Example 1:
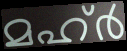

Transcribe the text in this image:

മഹ്ർ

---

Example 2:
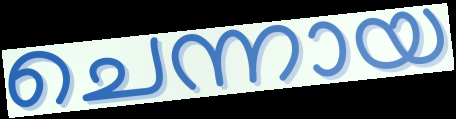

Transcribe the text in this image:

ചെന്നായ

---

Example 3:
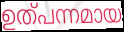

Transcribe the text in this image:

ഉത്പന്നമായ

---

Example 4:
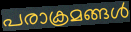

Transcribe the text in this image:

പരാക്രമങ്ങൾ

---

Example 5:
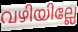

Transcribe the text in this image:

വഴിയില്ലേ